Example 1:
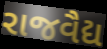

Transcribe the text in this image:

રાજવૈદ્ય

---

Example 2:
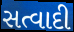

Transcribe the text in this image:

સત્વાદી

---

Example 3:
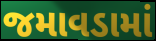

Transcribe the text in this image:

જમાવડામાં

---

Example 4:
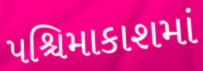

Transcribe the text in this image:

પશ્ચિમાકાશમાં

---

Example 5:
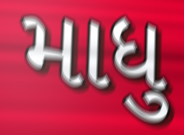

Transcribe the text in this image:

માધુ